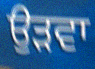
ਉੜਵਾ